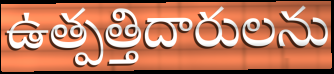
ఉత్పత్తిదారులను